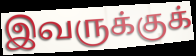
இவருக்குக்